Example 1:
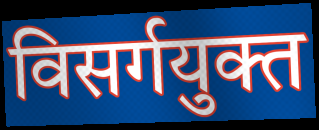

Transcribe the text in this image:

विसर्गयुक्त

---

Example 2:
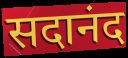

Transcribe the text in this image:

सदानंद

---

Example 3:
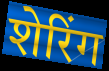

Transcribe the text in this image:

शेरिंग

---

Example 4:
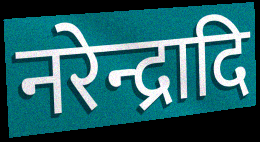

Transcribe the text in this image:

नरेन्द्रादि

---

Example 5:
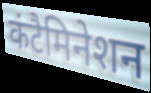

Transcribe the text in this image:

कंटैमिनेशन